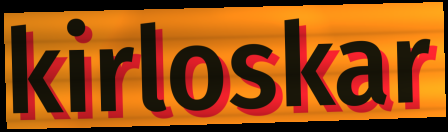
kirloskar